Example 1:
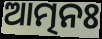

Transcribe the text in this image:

ଆତ୍ମନଃ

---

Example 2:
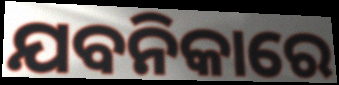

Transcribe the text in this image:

ଯବନିକାରେ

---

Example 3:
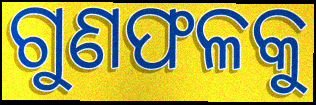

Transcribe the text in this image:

ଗୁଣଫଳକୁ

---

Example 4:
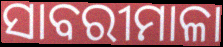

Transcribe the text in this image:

ସାବରୀମାଳା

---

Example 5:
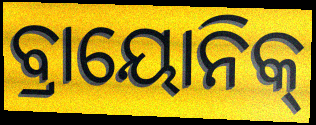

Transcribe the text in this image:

ବ୍ରାୟୋନିକ୍